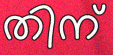
തിന്